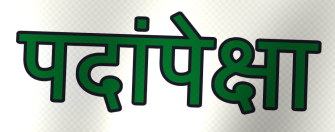
पदांपेक्षा